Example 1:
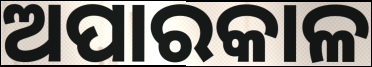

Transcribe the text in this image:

ଅପାରକାଳ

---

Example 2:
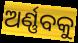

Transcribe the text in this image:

ଅର୍ଣ୍ଣବକୁ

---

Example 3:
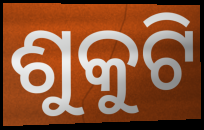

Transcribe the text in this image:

ଶୁକୁଟି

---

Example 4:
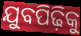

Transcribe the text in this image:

ଯୁବପିଢ଼ିକୁ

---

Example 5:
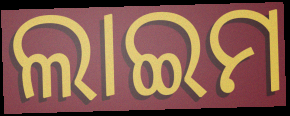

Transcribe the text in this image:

ଲାଇମ